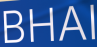
BHAI